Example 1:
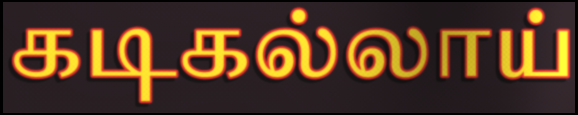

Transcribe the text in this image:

கடிகல்லாய்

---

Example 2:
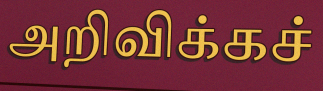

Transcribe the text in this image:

அறிவிக்கச்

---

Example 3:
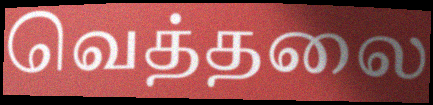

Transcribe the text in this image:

வெத்தலை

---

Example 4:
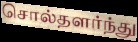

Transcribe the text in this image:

சொல்தளர்ந்து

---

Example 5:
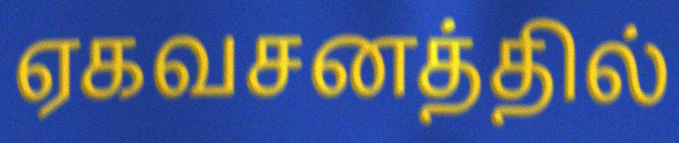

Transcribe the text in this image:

ஏகவசனத்தில்